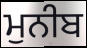
ਮੁਨੀਬ